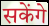
सकेंगे